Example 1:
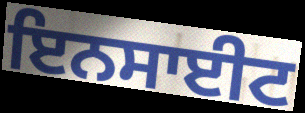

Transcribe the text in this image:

ਇਨਸਾਈਟ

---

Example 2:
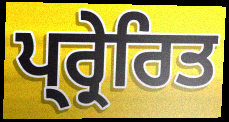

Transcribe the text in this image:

ਪ੍ਰ੍ਰੇਰਿਤ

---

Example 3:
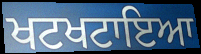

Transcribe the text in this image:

ਖਟਖਟਾਇਆ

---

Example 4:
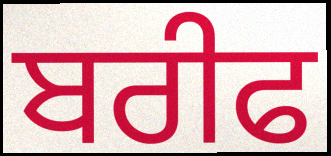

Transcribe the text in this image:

ਬਰੀਫ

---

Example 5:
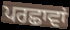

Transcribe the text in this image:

ਪਰਛਾਵਾਂ